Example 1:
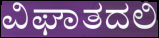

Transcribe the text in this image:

ವಿಘಾತದಲಿ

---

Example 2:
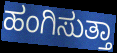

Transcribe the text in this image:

ಹಂಗಿಸುತ್ತಾ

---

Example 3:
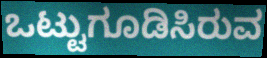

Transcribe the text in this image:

ಒಟ್ಟುಗೂಡಿಸಿರುವ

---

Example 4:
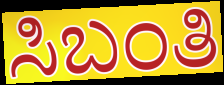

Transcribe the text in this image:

ಸಿಬಂತಿ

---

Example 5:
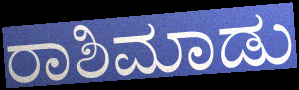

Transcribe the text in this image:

ರಾಶಿಮಾಡು